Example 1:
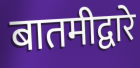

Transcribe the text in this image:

बातमीद्वारे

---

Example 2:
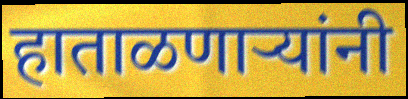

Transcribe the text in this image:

हाताळणाऱ्यांनी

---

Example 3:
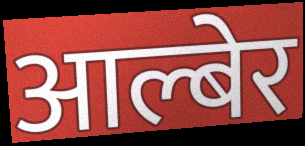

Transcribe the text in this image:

आल्बेर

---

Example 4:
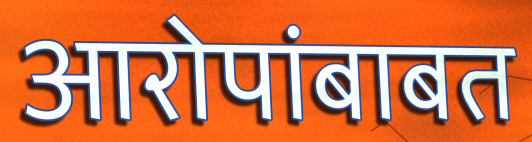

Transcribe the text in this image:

आरोपांबाबत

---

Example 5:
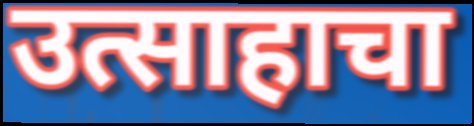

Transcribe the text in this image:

उत्साहाचा